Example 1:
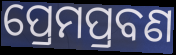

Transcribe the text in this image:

ପ୍ରେମପ୍ରବଣ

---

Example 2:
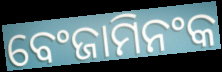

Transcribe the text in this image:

ବେଂଜାମିନଂକ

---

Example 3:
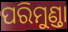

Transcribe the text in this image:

ପରିମୁଣ୍ଡା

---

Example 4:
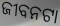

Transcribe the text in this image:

ଜୀବନଟା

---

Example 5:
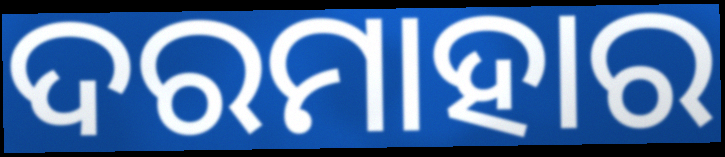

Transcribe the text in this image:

ଦରମାହାର